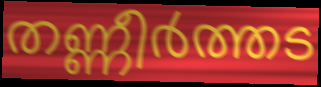
തണ്ണീർത്തട